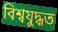
বিশ্বযুদ্ধত